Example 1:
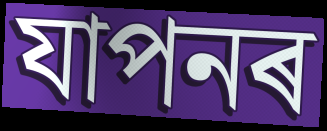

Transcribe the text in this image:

যাপনৰ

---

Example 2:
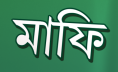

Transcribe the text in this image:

মাফি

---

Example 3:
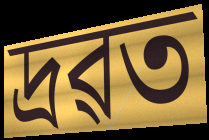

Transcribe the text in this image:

দ্ৰৱত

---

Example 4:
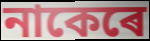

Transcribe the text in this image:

নাকেৰে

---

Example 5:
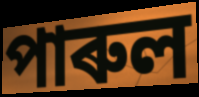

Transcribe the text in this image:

পাৰুল